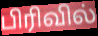
பிரிவில்